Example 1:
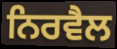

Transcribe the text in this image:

ਨਿਰਵੈਲ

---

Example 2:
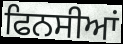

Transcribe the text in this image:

ਫਿਨਸੀਆਂ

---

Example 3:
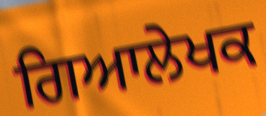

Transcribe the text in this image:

ਗਿਆਲੇਖਕ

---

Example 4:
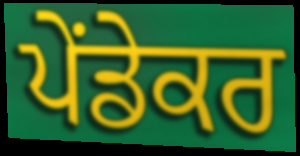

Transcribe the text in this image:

ਪੇਂਡੇਕਰ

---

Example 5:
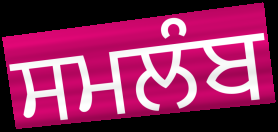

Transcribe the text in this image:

ਸਮਲੰਬ